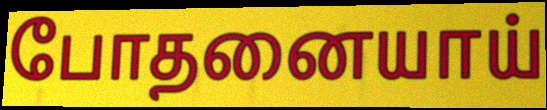
போதனையாய்